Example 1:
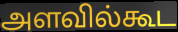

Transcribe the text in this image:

அளவில்கூட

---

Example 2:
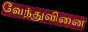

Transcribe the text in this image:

வேந்துவினை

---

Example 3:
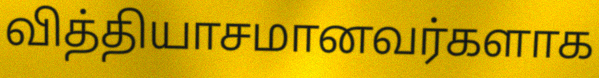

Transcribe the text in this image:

வித்தியாசமானவர்களாக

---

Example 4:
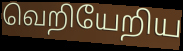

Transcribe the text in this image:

வெறியேறிய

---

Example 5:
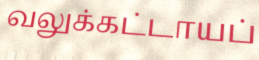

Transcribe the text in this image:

வலுக்கட்டாயப்